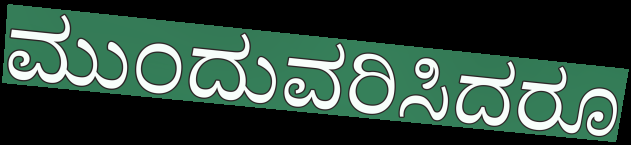
ಮುಂದುವರಿಸಿದರೂ